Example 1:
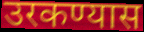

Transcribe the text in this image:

उरकण्यास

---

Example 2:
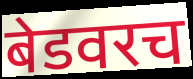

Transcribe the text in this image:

बेडवरच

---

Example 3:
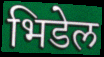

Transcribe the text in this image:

भिडेल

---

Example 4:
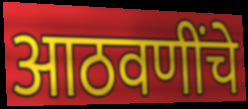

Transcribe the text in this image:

आठवणींचे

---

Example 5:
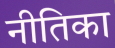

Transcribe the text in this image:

नीतिका